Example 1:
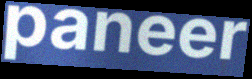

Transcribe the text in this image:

paneer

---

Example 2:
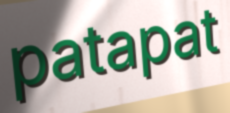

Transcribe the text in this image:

patapat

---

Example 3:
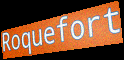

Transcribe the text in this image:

Roquefort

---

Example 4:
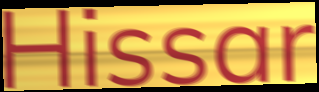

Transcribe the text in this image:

Hissar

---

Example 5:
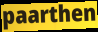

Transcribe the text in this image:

paarthen